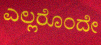
ಎಲ್ಲರೊಂದೇ